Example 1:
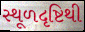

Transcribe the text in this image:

સ્થૂળદૃષ્ટિથી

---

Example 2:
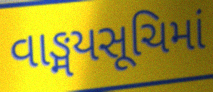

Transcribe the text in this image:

વાઙ્મયસૂચિમાં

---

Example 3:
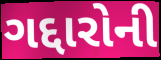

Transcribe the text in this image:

ગદ્દારોની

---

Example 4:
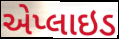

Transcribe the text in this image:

એપ્લાઇડ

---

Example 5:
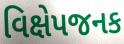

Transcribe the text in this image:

વિક્ષેપજનક